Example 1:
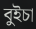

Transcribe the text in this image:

বুইচা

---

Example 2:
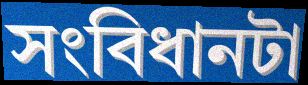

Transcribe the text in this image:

সংবিধানটা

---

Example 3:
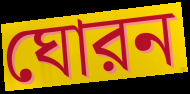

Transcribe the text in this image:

ঘোরন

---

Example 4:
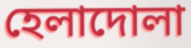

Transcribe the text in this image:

হেলাদোলা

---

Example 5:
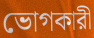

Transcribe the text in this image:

ভোগকারী